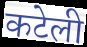
कटेली